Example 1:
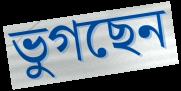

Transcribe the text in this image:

ভুগছেন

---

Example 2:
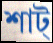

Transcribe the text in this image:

শাট্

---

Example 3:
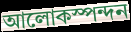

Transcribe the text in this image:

আলোকস্পন্দন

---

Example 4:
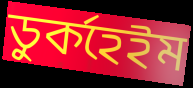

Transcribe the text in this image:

ডুর্কহেইম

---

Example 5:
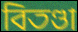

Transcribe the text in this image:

বিতণ্ডা